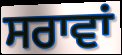
ਸਰਾਵਾਂ